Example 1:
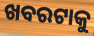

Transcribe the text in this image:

ଖବରଟାକୁ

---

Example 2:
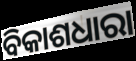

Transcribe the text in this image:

ବିକାଶଧାରା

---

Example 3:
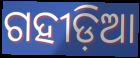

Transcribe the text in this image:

ଗହୀଡ଼ିଆ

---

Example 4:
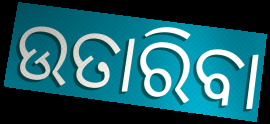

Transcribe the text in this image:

ଉତାରିବା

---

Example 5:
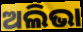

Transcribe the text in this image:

ଅଲିଭା